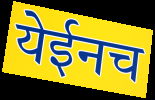
येईनच